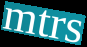
mtrs